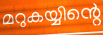
മറുകയ്യിന്റെ